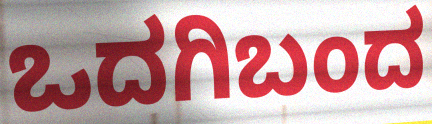
ಒದಗಿಬಂದ